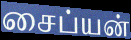
சைப்யன்